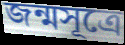
জন্মসূত্রে